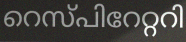
റെസ്പിറേറ്ററി